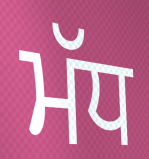
ਮੱਧ